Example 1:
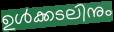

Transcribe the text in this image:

ഉൾക്കടലിനും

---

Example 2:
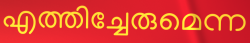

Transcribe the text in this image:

എത്തിച്ചേരുമെന്ന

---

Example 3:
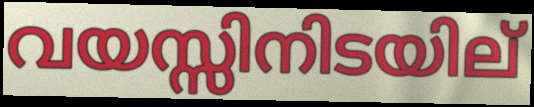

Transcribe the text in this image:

വയസ്സിനിടയില്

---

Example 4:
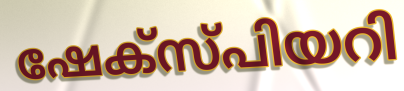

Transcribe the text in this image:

ഷേക്സ്പിയറി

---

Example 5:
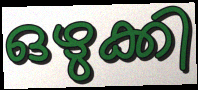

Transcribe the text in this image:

ഒഴുക്കി